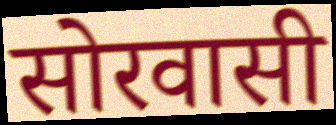
सोरवासी